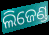
ଲିଜେଣ୍ଡ